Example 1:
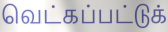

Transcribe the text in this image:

வெட்கப்பட்டுக்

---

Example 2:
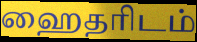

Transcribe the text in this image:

ஹைதரிடம்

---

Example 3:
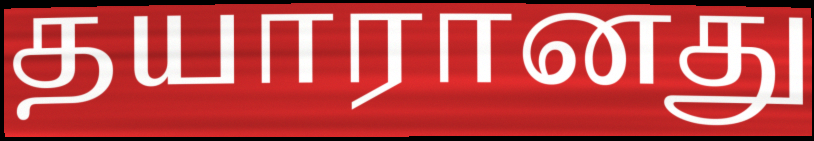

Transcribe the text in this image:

தயாரானது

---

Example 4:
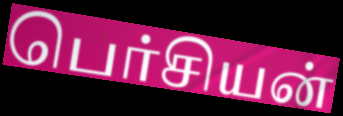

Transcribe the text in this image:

பெர்சியன்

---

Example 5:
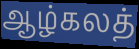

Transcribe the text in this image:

ஆழ்கலத்